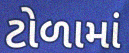
ટોળામાં